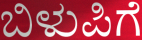
ಬಿಳುಪಿಗೆ